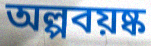
অল্পবয়ষ্ক